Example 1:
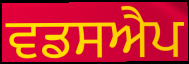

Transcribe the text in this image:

ਵਡਸਐਪ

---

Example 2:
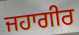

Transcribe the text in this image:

ਜਹਾਗੀਰ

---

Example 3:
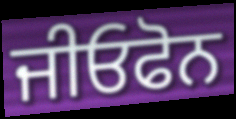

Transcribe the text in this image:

ਜੀਓਫੋਨ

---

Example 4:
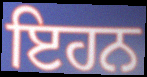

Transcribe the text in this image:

ਇਹਨ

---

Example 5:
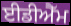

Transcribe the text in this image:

ਈਡੀਐੱਮ